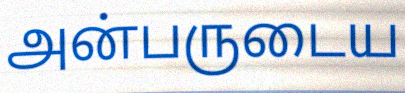
அன்பருடைய